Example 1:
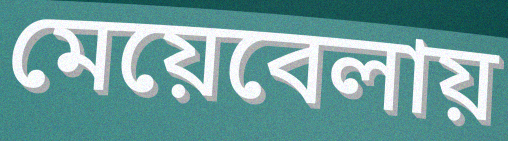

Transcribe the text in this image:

মেয়েবেলায়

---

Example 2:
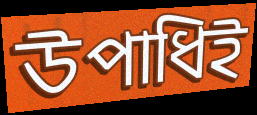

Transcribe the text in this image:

উপাধিই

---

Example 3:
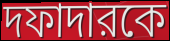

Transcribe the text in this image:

দফাদারকে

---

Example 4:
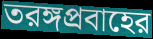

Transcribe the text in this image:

তরঙ্গপ্রবাহের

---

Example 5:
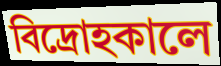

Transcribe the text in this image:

বিদ্রোহকালে